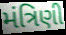
મંત્રિણી